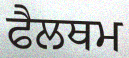
ਫੈਲਥਮ